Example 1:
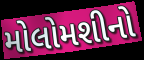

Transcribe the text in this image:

મોલોમશીનો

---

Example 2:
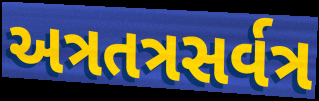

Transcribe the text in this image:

અત્રતત્રસર્વત્ર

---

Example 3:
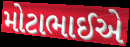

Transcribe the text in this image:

મોટાભાઈએ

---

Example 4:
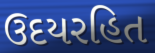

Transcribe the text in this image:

ઉદયરહિત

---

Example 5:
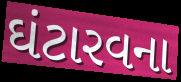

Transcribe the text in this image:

ઘંટારવના